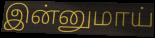
இன்னுமாய்